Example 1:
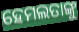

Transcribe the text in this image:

ହେମଲତାଙ୍କୁ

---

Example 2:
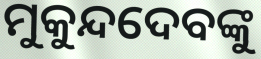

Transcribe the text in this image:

ମୁକୁନ୍ଦଦେବଙ୍କୁ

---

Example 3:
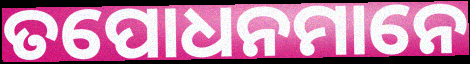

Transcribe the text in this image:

ତପୋଧନମାନେ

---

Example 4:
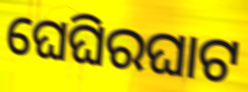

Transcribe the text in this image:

ଘେଘିରଘାଟ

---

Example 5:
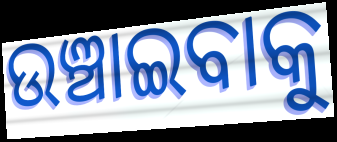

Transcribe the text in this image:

ଉଞ୍ଚାଇବାକୁ